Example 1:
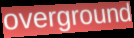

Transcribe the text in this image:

overground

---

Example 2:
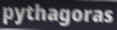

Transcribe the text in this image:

pythagoras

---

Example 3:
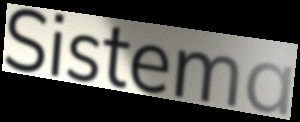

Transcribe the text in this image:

Sistema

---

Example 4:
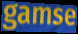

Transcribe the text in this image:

gamse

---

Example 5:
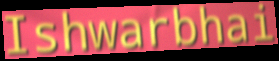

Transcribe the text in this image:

Ishwarbhai